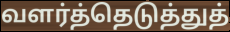
வளர்த்தெடுத்துத்